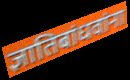
ज्ञातिबांधवांना